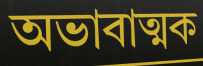
অভাবাত্মক